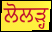
ਲੋਲੜ੍ਹ